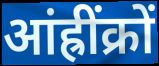
आंह्रींक्रों